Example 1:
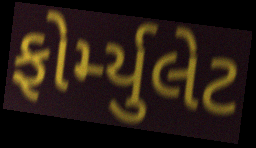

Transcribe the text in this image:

ફોર્મ્યુલેટ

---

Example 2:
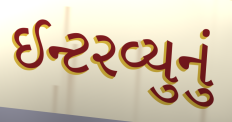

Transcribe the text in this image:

ઈન્ટરવ્યુનું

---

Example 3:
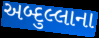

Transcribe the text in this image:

અબ્દુલ્લાના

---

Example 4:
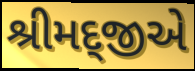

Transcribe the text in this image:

શ્રીમદ્જીએ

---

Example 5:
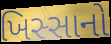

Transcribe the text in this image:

ખિસ્સાનો